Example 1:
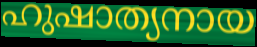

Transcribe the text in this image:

ഹുഷാത്യനായ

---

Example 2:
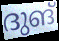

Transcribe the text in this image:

ദുങ്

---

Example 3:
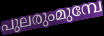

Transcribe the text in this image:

പുലരുംമുമ്പേ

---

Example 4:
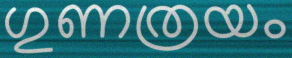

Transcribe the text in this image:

ഗുണത്രയം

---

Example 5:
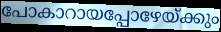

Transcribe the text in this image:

പോകാറായപ്പോഴേയ്ക്കും